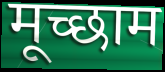
मूच्छाम